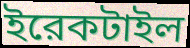
ইরেকটাইল